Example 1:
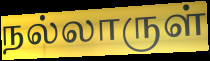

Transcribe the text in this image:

நல்லாருள்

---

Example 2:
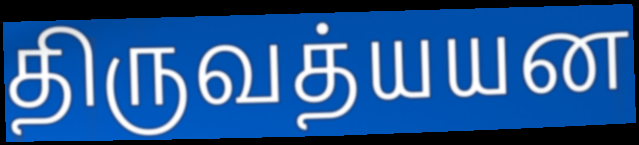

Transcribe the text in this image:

திருவத்யயன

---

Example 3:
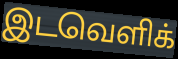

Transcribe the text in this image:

இடவெளிக்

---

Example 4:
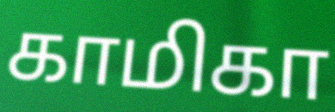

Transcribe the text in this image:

காமிகா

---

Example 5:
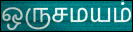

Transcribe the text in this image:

ஒருசமயம்